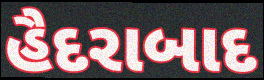
હૈદરાબાદ